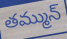
తమ్మున్